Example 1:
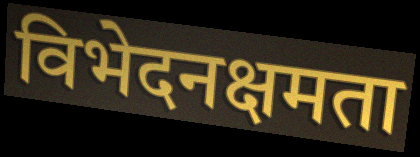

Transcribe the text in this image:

विभेदनक्षमता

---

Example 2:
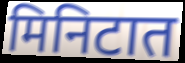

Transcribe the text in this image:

मिनिटात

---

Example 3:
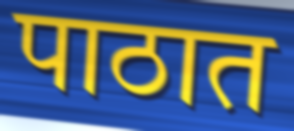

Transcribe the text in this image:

पाठात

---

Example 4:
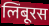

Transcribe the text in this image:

लिंबूरस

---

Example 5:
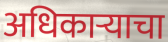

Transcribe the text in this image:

अधिकार्‍याचा